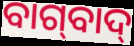
ବାଗ୍‌ବାଦ୍